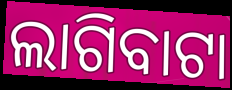
ଲାଗିବାଟା